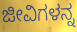
ಜೀವಿಗಳನ್ನ